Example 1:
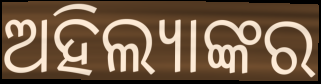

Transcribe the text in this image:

ଅହିଲ୍ୟାଙ୍କର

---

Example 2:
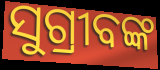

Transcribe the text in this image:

ସୁଗ୍ରୀବଙ୍କ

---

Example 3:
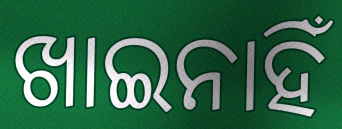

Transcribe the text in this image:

ଖାଇନାହିଁ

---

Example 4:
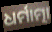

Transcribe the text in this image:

ଧର୍ମାତ୍ମା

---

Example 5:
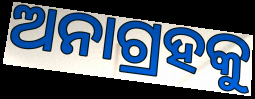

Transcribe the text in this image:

ଅନାଗ୍ରହକୁ